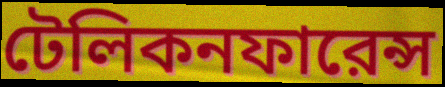
টেলিকনফারেন্স